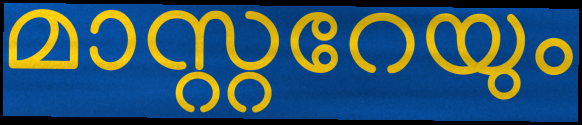
മാസ്റ്ററേയും